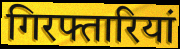
गिरफ्तारियां